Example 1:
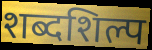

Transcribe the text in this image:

शब्दशिल्प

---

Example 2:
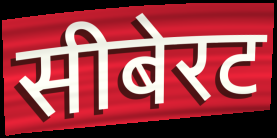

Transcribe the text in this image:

सीबेरट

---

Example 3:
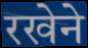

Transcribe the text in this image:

रखेने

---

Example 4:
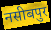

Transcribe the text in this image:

नसीबपुर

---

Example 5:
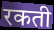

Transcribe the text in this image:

रकती